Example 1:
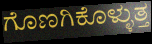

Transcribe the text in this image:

ಗೊಣಗಿಕೊಳ್ಳುತ್ತ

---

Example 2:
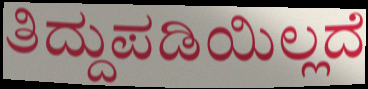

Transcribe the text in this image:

ತಿದ್ದುಪಡಿಯಿಲ್ಲದೆ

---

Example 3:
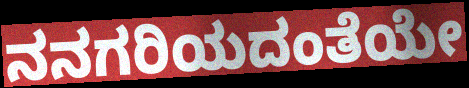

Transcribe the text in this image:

ನನಗರಿಯದಂತೆಯೇ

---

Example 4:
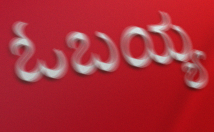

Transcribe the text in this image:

ಓಬಯ್ಯ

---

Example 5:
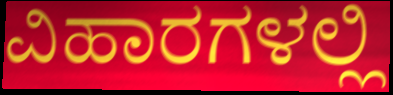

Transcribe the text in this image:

ವಿಹಾರಗಳಲ್ಲಿ